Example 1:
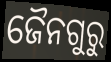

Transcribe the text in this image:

ଜୈନଗୁରୁ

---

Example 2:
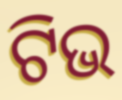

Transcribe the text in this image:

ଟିଭ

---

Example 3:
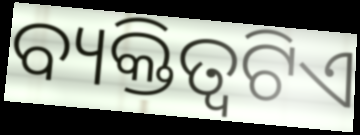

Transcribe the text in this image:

ବ୍ୟକ୍ତିତ୍ବଟିଏ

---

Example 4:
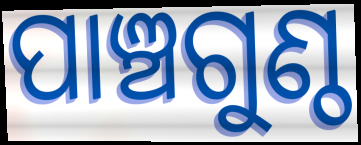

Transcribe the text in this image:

ପାଞ୍ଚଗୁଣ୍ଠ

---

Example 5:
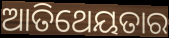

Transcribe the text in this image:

ଆତିଥେୟତାର